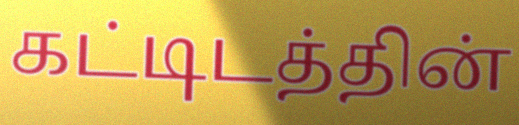
கட்டிடத்தின்